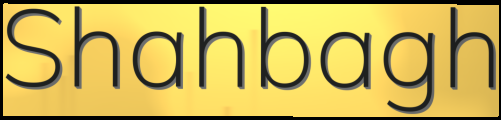
Shahbagh